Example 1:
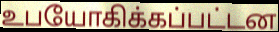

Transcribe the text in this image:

உபயோகிக்கப்பட்டன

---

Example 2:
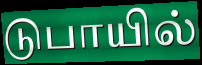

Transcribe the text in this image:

டுபாயில்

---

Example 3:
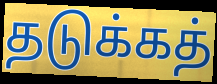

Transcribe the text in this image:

தடுக்கத்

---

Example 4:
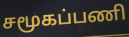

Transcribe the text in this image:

சமூகப்பணி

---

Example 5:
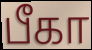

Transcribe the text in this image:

பீகா